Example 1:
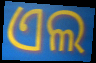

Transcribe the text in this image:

ଏଲ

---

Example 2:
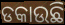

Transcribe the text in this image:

ଡକାଉଛି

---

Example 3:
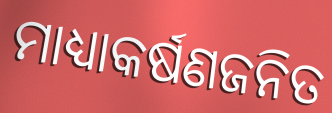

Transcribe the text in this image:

ମାଧ୍ୟାକର୍ଷଣଜନିତ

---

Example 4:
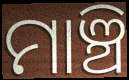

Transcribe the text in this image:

ମାଞ୍ଚି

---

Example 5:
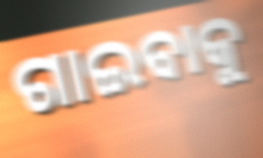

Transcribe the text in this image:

ଗାଇବାକୁ